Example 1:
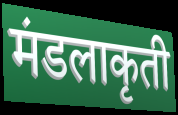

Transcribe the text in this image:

मंडलाकृती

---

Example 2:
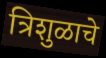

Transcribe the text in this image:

त्रिशुळाचे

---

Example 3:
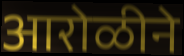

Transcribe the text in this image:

आरोळीने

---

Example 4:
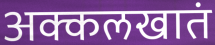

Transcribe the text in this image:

अक्कलखातं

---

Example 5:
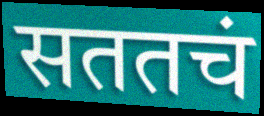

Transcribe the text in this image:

सततचं